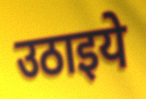
उठाइये